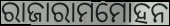
ରାଜାରାମମୋହନ